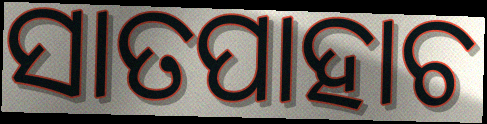
ସାତପାହାଚ